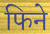
फिने